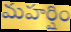
మహర్షిం